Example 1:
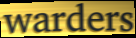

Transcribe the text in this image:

warders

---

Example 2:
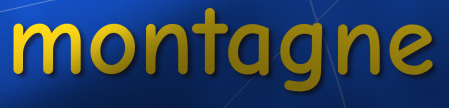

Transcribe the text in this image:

montagne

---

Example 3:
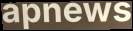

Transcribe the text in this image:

apnews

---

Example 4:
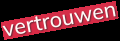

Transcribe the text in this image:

vertrouwen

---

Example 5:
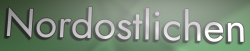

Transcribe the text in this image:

Nordostlichen